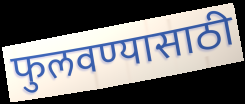
फुलवण्यासाठी